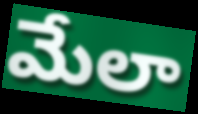
మేలా